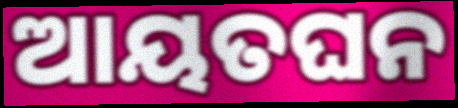
ଆୟତଘନ